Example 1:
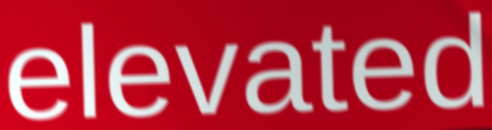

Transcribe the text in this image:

elevated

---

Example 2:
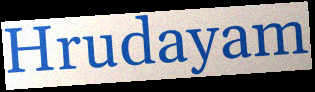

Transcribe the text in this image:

Hrudayam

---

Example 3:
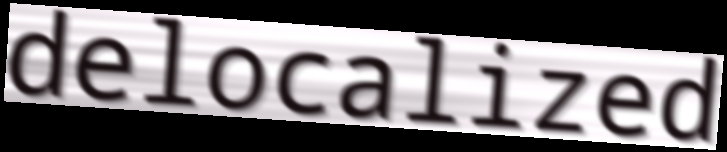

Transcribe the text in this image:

delocalized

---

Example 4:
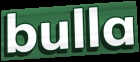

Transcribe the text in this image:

bulla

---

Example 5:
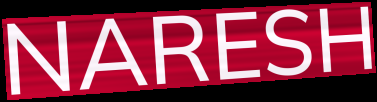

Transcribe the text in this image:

NARESH